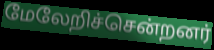
மேலேறிச்சென்றனர்